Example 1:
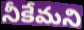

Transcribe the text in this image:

నీకేమని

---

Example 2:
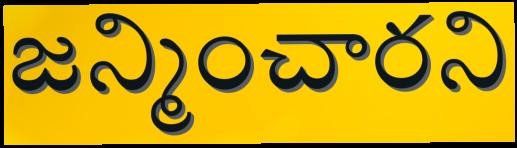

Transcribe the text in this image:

జన్మించారని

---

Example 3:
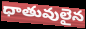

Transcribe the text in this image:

ధాతువులైన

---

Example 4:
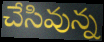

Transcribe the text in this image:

చేసివున్న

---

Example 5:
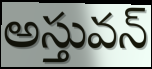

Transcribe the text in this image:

అస్తువన్